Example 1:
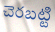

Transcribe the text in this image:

చెరబట్టి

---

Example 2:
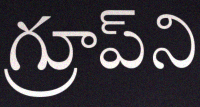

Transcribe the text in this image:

గ్రూప్‌ని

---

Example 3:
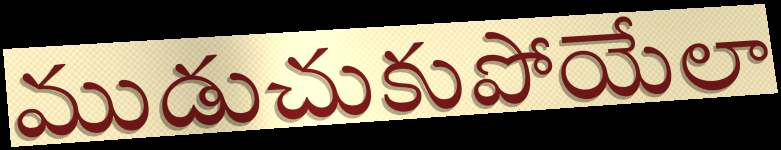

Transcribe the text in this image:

ముడుచుకుపోయేలా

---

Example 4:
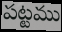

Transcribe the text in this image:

పట్టము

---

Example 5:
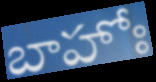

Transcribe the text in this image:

బాహోః